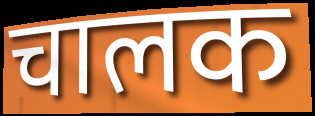
चालक